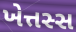
ખેત્તસ્સ